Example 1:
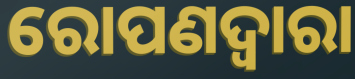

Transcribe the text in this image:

ରୋପଣଦ୍ୱାରା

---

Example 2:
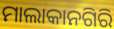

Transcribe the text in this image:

ମାଲାକାନଗିରି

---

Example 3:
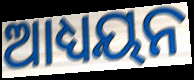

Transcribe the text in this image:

ଆଧ୍ୟୟନ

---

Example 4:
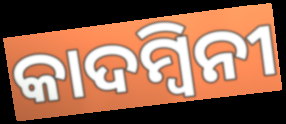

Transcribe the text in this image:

କାଦମ୍ୱିନୀ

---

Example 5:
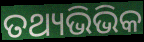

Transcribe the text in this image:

ତଥ୍ୟଭିଭିକ